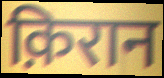
क़िरान